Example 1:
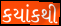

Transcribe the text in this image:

કયાંકથી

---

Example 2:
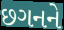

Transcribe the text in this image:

છગનને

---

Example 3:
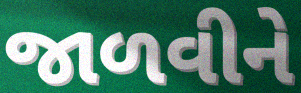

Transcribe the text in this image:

જાળવીને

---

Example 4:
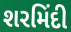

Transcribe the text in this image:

શરમિંદી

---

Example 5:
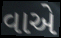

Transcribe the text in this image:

વાએ